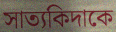
সাত্যকিদাকে